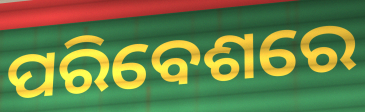
ପରିବେଶରେ